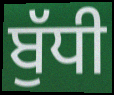
ਬੁੱਧੀ